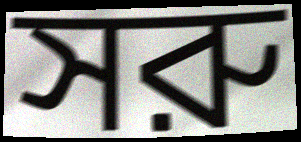
সরু